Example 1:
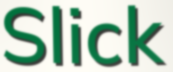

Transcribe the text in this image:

Slick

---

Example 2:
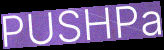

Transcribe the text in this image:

PUSHPa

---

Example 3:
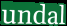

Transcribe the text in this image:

undal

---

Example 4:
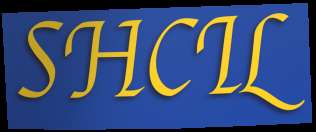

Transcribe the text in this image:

SHCIL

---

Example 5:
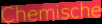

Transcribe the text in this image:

Chemische